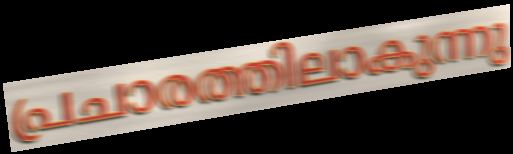
പ്രചാരത്തിലാകുന്നു